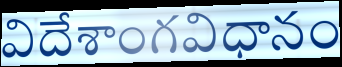
విదేశాంగవిధానం